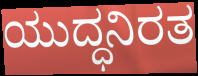
ಯುದ್ಧನಿರತ